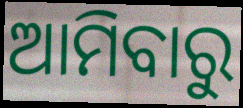
ଆମିବାରୁ